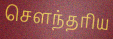
சௌந்தரிய